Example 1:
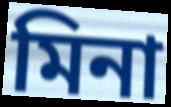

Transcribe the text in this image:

মিনা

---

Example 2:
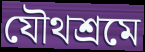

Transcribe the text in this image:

যৌথশ্রমে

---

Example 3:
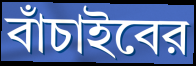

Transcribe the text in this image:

বাঁচাইবের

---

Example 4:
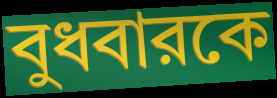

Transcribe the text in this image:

বুধবারকে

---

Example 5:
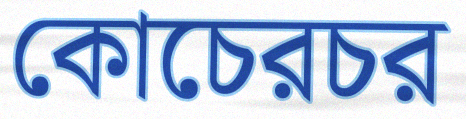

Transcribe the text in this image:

কোচেরচর